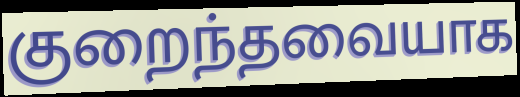
குறைந்தவையாக